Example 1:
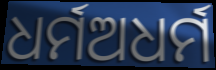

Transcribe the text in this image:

ଧର୍ମଅଧର୍ମ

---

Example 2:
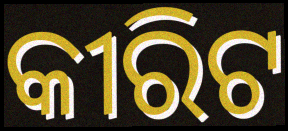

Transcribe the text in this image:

କୀରିଟ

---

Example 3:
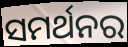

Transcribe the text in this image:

ସମର୍ଥନର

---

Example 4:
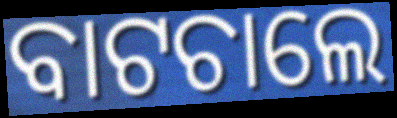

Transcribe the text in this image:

ବାଟଚାଲେ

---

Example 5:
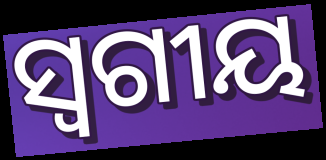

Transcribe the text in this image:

ସ୍ୱଗୀୟ